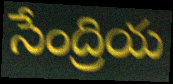
సేంద్రియ